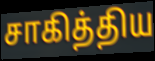
சாகித்திய